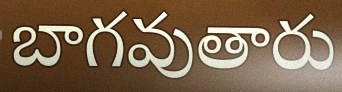
బాగవుతారు